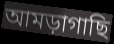
আমড়াগাছি